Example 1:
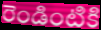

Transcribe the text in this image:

రెండింటికి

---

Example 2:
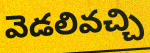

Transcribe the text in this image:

వెడలివచ్చి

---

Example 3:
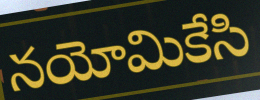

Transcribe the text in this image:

నయోమికేసి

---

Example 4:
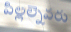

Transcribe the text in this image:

పిల్లల్నెవరు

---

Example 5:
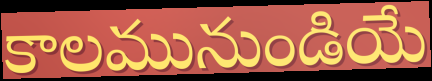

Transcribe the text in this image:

కాలమునుండియే